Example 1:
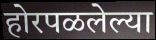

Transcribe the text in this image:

होरपळलेल्या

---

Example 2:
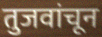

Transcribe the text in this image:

तुजवांचून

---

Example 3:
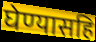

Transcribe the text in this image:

घेण्यासहि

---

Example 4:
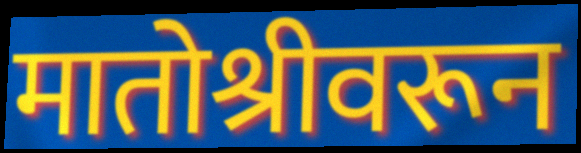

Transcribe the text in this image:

मातोश्रीवरून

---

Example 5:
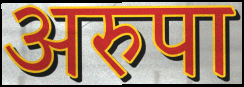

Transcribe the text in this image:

अरुपा